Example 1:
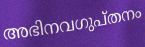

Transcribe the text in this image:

അഭിനവഗുപ്തനം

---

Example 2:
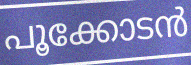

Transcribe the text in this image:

പൂക്കോടൻ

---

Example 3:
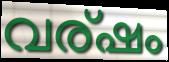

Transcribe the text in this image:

വര്ഷം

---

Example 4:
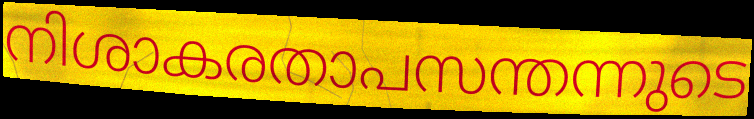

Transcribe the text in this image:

നിശാകരതാപസന്തന്നുടെ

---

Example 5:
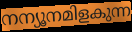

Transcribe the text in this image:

നന്യൂനമിളകുന്ന